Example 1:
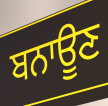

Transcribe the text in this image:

ਬਨਾਊਣ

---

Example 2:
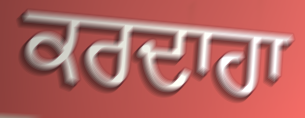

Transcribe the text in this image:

ਕਰਦਾਹਾ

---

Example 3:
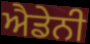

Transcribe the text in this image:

ਐਡੇਨੀ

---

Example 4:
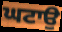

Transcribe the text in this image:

ਘਟਾਉ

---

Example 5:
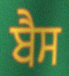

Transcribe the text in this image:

ਬੈਸ